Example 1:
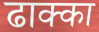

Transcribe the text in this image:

ढाक्का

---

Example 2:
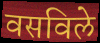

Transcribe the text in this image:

वसविले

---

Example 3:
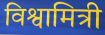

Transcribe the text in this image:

विश्वामित्री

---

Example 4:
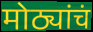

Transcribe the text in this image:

मोठ्यांचं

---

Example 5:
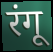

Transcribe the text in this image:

रंगू